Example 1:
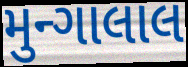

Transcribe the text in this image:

મુન્ગાલાલ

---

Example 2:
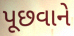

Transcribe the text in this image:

પૂછવાને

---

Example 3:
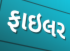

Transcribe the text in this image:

ફાઇલર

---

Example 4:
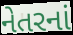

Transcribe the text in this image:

નેતરનાં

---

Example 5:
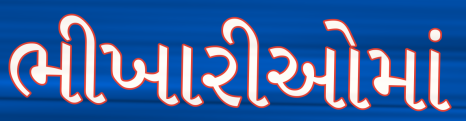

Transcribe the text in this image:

ભીખારીઓમાં